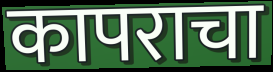
कापराचा